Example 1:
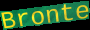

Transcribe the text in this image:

Bronte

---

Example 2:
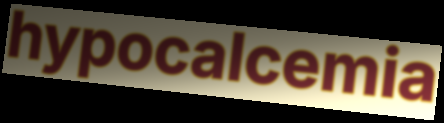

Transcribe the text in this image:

hypocalcemia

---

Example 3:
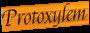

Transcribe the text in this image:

Protoxylem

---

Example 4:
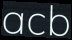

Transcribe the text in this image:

acb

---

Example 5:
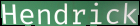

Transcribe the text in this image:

Hendrick